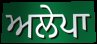
ਅਲੇਪਾ